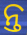
ନ୍ତ